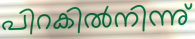
പിറകിൽനിന്നു്